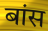
बांस